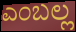
ಎಂಬಲ್ಲ